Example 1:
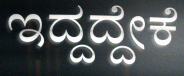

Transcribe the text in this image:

ಇದ್ದದ್ದೇಕೆ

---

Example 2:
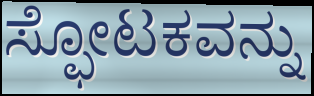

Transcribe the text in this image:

ಸ್ಫೋಟಕವನ್ನು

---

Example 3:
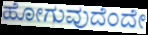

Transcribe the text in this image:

ಹೋಗುವುದೆಂದೇ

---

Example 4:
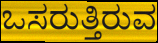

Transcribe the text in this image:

ಒಸರುತ್ತಿರುವ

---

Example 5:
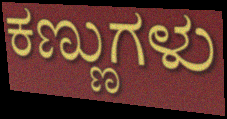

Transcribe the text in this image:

ಕಣ್ಣುಗಳು